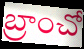
బ్రాంచో